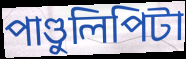
পাণ্ডুলিপিটা